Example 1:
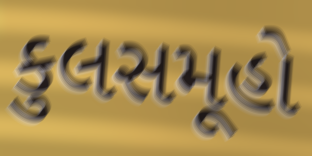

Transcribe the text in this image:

કુલસમૂહો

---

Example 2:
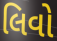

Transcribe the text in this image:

લિવો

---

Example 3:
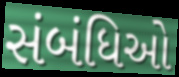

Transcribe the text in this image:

સંબંધિઓ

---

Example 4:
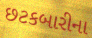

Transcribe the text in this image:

છટકબારીના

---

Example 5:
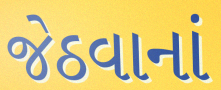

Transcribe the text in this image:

જેઠવાનાં